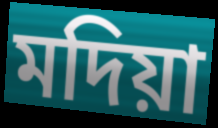
মদিয়া